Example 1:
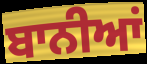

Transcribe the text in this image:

ਬਾਨੀਆਂ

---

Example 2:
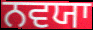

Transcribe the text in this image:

ਨਵਯਾ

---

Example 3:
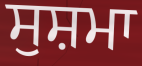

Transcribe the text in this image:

ਸੁਸ਼ਮਾ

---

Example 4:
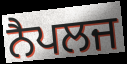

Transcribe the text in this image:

ਨੈਪਲਜ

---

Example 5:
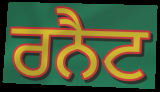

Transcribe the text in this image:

ਰਨੈਟ